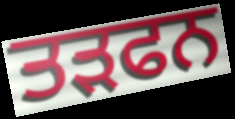
ਤੜਫਨ